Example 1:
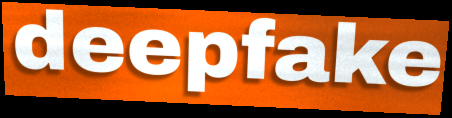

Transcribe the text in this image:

deepfake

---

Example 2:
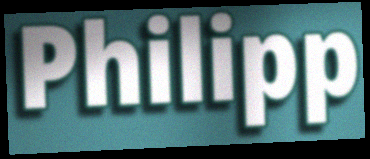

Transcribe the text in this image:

Philipp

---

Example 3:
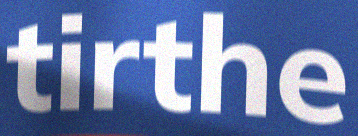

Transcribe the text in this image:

tirthe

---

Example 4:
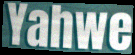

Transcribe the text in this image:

Yahwe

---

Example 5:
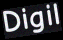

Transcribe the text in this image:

Digil